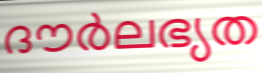
ദൗർലഭ്യത